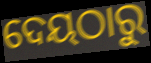
ଦେୟଠାରୁ